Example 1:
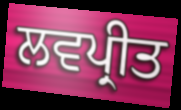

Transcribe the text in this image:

ਲਵਪ੍ਰੀਤ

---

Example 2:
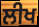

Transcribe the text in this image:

ਲੀਖ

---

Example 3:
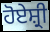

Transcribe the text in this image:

ਹੋਏਸ਼੍ਰੀ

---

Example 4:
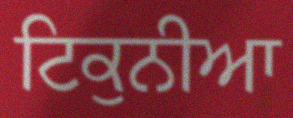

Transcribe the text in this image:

ਟਿਕੁਨੀਆ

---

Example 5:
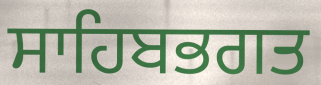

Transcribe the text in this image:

ਸਾਹਿਬਭਗਤ